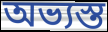
অভ্যস্ত